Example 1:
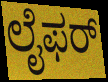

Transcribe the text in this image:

ಲೈಫರ್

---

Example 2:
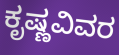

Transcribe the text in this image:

ಕೃಷ್ಣವಿವರ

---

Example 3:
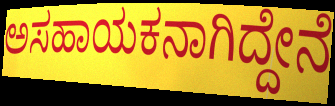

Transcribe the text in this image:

ಅಸಹಾಯಕನಾಗಿದ್ದೇನೆ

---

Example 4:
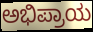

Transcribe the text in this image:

ಅಭಿಪ್ರಾಯ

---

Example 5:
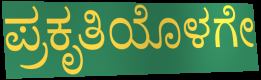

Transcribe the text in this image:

ಪ್ರಕೃತಿಯೊಳಗೇ